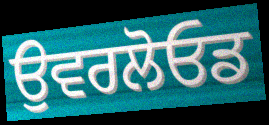
ਉਵਰਲੋਓਡ